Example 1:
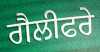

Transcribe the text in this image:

ਗੈਲੀਫਰੇ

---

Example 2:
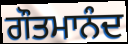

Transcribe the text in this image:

ਗੌਤਮਾਨੰਦ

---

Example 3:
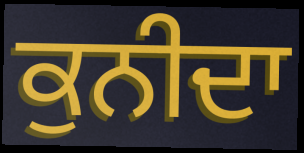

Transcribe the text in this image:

ਕੁਨੀਦਾ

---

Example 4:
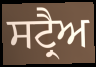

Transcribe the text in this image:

ਸਟ੍ਰੈਅ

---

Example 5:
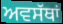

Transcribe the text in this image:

ਅਵਸੱਥਾਂ